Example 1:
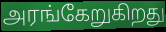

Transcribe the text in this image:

அரங்கேறுகிறது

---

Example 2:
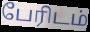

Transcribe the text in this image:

பேரிடம்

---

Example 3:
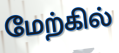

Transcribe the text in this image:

மேற்கில்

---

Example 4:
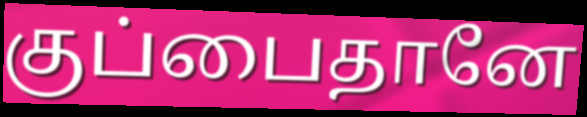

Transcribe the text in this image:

குப்பைதானே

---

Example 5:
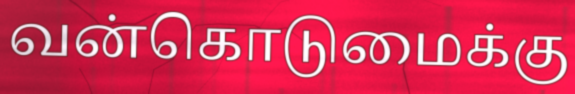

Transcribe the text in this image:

வன்கொடுமைக்கு